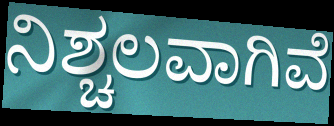
ನಿಶ್ಚಲವಾಗಿವೆ